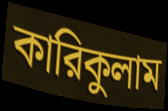
কারিকুলাম